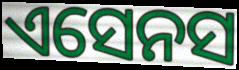
ଏସେନସ